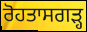
ਰੋਹਤਾਸਗੜ੍ਹ